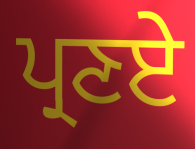
ਪ੍ਰਣਏ